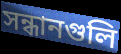
সন্ধানগুলি